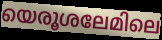
യെരൂശലേമിലെ